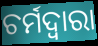
ଚର୍ମଦ୍ଵାରା